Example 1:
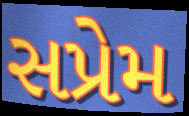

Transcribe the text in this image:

સપ્રેમ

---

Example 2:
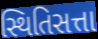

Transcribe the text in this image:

સ્થિતિસત્તા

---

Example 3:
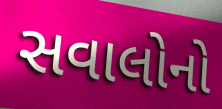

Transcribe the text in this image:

સવાલોનો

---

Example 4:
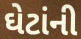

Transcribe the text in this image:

ઘેટાંની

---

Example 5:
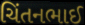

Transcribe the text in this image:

ચિંતનભાઈ